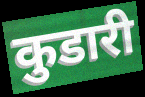
कुडारी